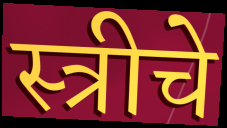
स्त्रीचे